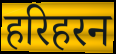
हरिहरन